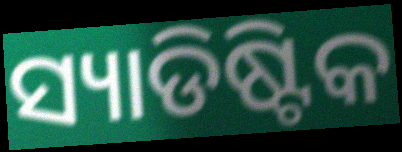
ସ୍ୟାଡିଷ୍ଟିକ